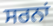
ਸਰਨਾਂ